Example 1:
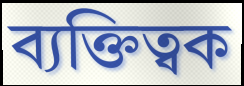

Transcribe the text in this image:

ব্যক্তিত্বক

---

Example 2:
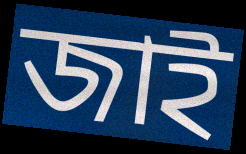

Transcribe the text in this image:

জাই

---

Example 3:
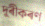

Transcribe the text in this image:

দূৰীকৰণ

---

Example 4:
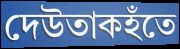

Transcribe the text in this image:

দেউতাকহঁতে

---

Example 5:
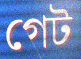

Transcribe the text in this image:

গেট